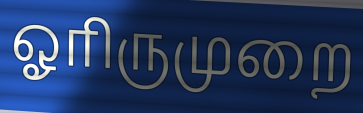
ஓரிருமுறை